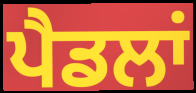
ਪੈਡਲਾਂ